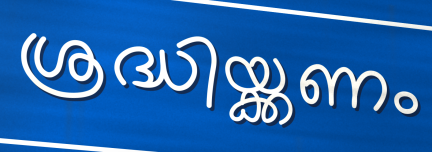
ശ്രദ്ധിയ്ക്കണം